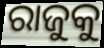
ରାଜୁକୁ